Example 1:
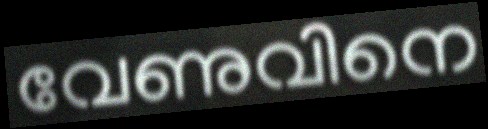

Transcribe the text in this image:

വേണുവിനെ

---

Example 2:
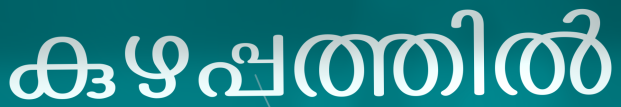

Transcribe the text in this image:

കുഴപ്പത്തിൽ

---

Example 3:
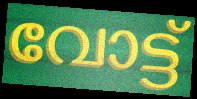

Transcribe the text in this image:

വോട്ട്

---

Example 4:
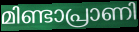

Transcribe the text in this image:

മിണ്ടാപ്രാണി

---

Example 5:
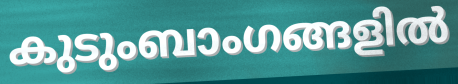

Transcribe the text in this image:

കുടുംബാംഗങ്ങളിൽ